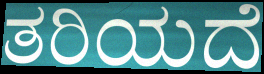
ತರಿಯದೆ